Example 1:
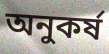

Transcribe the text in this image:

অনুকর্ষ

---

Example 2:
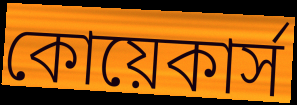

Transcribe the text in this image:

কোয়েকার্স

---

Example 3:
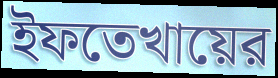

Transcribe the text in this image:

ইফতেখায়ের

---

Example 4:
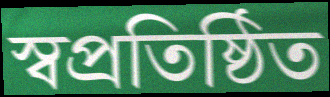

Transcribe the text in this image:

স্বপ্রতিষ্ঠিত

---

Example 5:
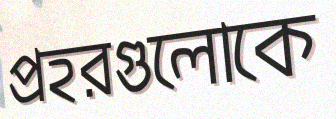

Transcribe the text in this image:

প্রহরগুলোকে